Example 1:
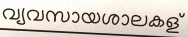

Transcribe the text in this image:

വ്യവസായശാലകള്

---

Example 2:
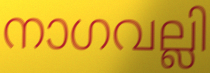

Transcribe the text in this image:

നാഗവല്ലി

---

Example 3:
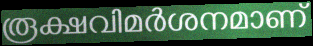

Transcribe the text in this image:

രൂക്ഷവിമർശനമാണ്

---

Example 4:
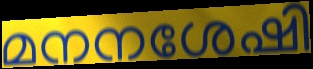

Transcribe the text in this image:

മനനശേഷി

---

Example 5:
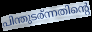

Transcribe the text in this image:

പിന്തുടര്ന്നതിന്റെ